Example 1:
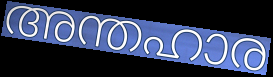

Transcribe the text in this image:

അന്തഹാര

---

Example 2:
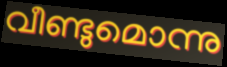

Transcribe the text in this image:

വീണ്ടുമൊന്നു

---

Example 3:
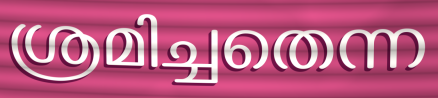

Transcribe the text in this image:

ശ്രമിച്ചതെന്ന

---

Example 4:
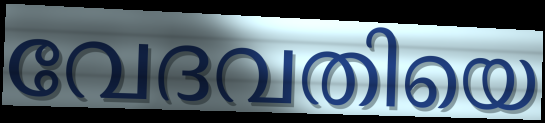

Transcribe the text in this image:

വേദവതിയെ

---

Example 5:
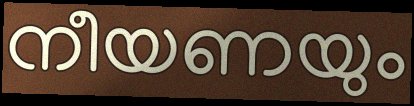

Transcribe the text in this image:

നീയണയും